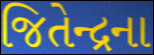
જિતેન્દ્રના